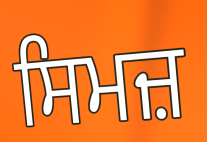
ਸਿਮਜ਼